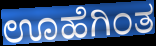
ಊಹೆಗಿಂತ